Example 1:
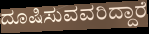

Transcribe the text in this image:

ದೂಷಿಸುವವರಿದ್ದಾರೆ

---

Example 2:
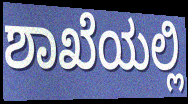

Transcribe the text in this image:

ಶಾಖೆಯಲ್ಲಿ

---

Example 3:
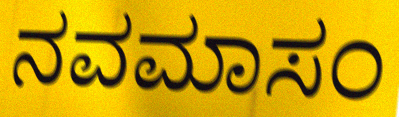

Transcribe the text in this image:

ನವಮಾಸಂ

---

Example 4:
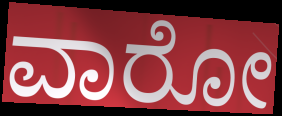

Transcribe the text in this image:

ವಾರೋ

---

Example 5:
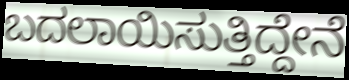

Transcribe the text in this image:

ಬದಲಾಯಿಸುತ್ತಿದ್ದೇನೆ